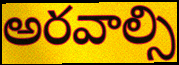
అరవాల్సి